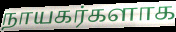
நாயகர்களாக